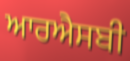
ਆਰਐਸਬੀ